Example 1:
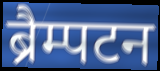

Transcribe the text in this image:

ब्रैम्पटन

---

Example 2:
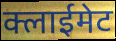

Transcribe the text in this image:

क्लाईमेट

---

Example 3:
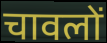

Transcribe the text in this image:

चावलों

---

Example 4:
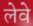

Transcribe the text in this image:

लेवे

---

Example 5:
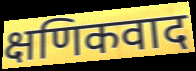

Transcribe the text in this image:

क्षणिकवाद